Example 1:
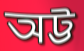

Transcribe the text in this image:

অট্ট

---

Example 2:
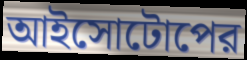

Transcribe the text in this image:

আইসোটোপের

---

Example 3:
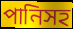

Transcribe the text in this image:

পানিসহ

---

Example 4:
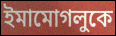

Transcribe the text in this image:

ইমামোগলুকে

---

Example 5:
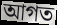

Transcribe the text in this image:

আগত